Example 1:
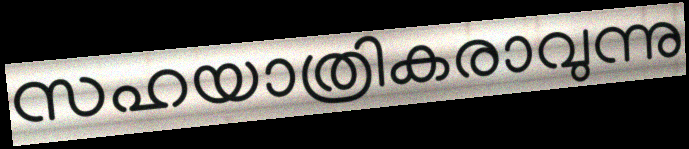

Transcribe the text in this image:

സഹയാത്രികരാവുന്നു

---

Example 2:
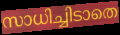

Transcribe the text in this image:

സാധിച്ചിടാതെ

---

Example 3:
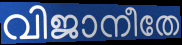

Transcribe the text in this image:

വിജാനീതേ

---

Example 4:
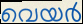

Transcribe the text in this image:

വെയർ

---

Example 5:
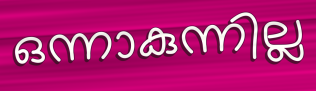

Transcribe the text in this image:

ഒന്നാകുന്നില്ല